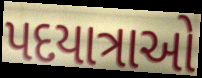
પદયાત્રાઓ